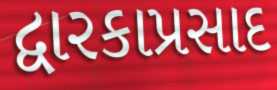
દ્વારકાપ્રસાદ